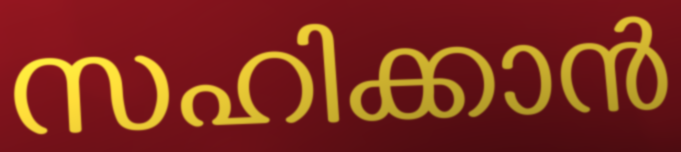
സഹിക്കാൻ